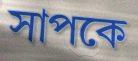
সাপকে